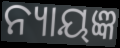
ନ୍ୟାୟଜ୍ଞ